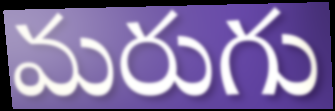
మరుగు